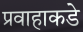
प्रवाहाकडे